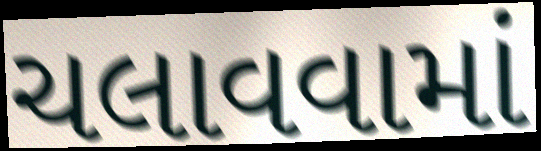
ચલાવવામાં